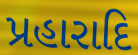
પ્રહારાદિ